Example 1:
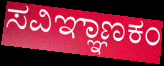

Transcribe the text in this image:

ಸವಿಞ್ಞಾಣಕಂ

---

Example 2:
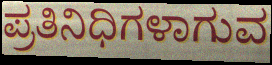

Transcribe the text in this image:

ಪ್ರತಿನಿಧಿಗಳಾಗುವ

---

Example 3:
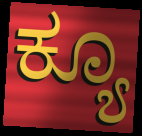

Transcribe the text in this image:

ಕ್ಯೂ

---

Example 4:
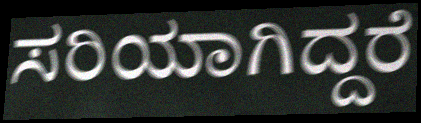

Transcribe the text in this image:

ಸರಿಯಾಗಿದ್ದರೆ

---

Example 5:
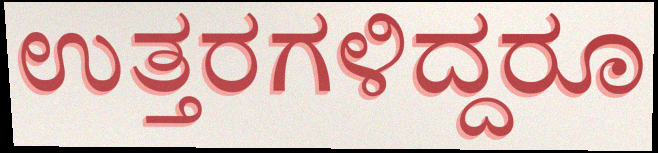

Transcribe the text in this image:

ಉತ್ತರಗಳಿದ್ದರೂ